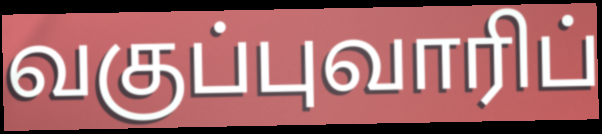
வகுப்புவாரிப்